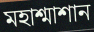
মহাশ্মাশান